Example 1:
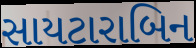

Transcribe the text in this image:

સાયટારાબિન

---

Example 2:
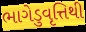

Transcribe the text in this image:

ભાગેડુવૃત્તિથી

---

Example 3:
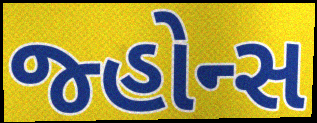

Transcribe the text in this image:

જ્હોન્સ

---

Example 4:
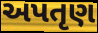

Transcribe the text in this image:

અપતૃણ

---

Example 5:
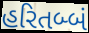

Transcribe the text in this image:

હરિતબ્બં